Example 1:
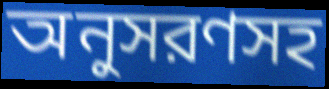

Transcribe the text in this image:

অনুসরণসহ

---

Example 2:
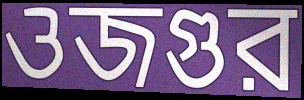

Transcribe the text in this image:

ওজগুর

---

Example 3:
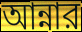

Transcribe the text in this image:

আন্নার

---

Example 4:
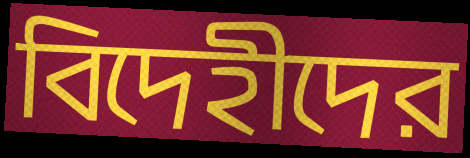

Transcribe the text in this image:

বিদেহীদের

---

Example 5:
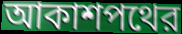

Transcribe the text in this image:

আকাশপথের